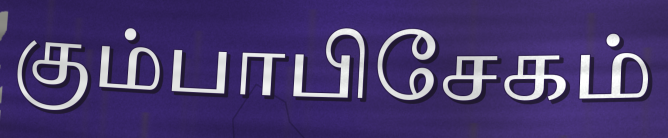
கும்பாபிசேகம்